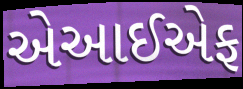
એઆઈએફ